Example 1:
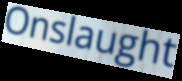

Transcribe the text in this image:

Onslaught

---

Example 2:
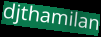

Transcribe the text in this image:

djthamilan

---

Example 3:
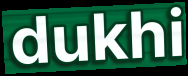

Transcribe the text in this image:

dukhi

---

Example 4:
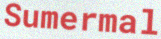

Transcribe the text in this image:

Sumermal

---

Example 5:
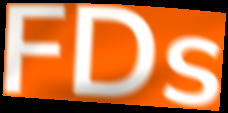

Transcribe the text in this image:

FDs